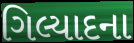
ગિલ્યાદના